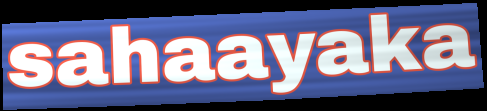
sahaayaka